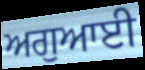
ਅਗੁਆਈ